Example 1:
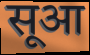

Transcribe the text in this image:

सूआ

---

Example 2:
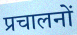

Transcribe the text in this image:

प्रचालनों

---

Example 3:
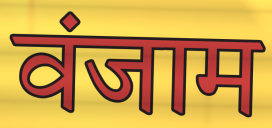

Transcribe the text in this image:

वंजाम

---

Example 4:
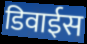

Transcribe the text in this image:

डिवाईस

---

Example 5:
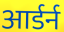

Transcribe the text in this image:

आर्डर्न